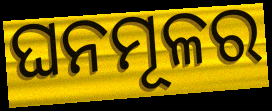
ଘନମୂଳର